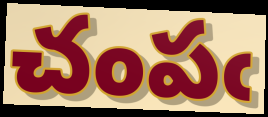
చంపఁ